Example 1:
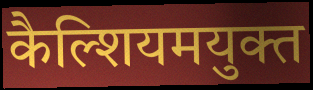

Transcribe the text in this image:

कैल्शियमयुक्त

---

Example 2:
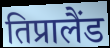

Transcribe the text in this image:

तिप्रालैंड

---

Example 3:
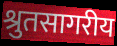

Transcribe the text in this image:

श्रुतसागरीय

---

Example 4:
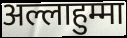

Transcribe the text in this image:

अल्लाहुम्मा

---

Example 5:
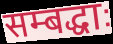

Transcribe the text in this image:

सम्बद्धाः